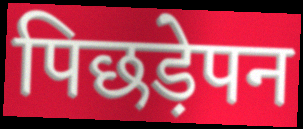
पिछड़ेपन